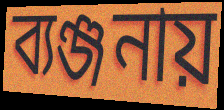
ব্যঞ্জনায়